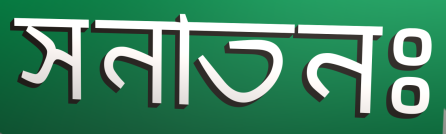
সনাতনঃ